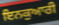
ਇਨਕੁਆਰੀ